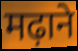
मढ़ाने